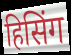
हिसिंग